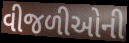
વીજળીઓની